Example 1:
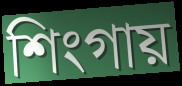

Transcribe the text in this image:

শিংগায়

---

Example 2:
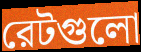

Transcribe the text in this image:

রেটগুলো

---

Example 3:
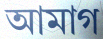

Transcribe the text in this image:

আমাগ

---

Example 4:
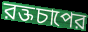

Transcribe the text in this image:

রক্তচাপের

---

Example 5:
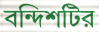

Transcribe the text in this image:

বন্দিশটির